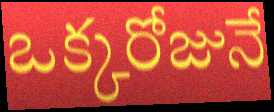
ఒక్కరోజునే